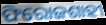
ଫିରୋଜଶାହୀ